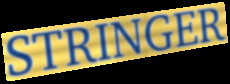
STRINGER